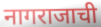
नागराजाची